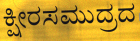
ಕ್ಷೀರಸಮುದ್ರದ